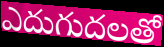
ఎదుగుదలతో